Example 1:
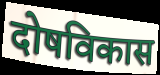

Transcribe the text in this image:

दोषविकास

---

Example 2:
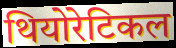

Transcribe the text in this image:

थियोरेटिकल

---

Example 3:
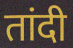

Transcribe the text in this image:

तांदी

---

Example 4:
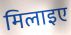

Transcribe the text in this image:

मिलाइए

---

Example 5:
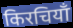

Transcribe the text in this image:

किरचियाँ